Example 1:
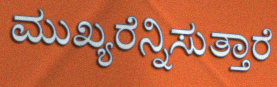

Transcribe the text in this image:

ಮುಖ್ಯರೆನ್ನಿಸುತ್ತಾರೆ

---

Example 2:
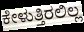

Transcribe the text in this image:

ಕೇಳುತ್ತಿರಲಿಲ್ಲ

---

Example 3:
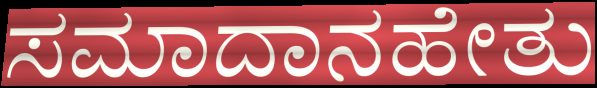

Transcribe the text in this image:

ಸಮಾದಾನಹೇತು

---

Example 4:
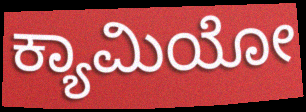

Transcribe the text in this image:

ಕ್ಯಾಮಿಯೋ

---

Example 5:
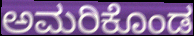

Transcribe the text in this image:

ಅಮರಿಕೊಂಡ